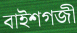
বাইশগজী